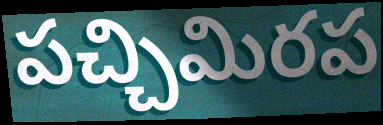
పచ్చిమిరప